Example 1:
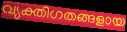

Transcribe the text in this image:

വ്യക്തിഗതങ്ങളായ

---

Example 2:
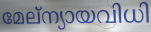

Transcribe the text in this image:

മേല്ന്യായവിധി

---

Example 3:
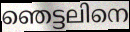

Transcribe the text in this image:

ഞെട്ടലിനെ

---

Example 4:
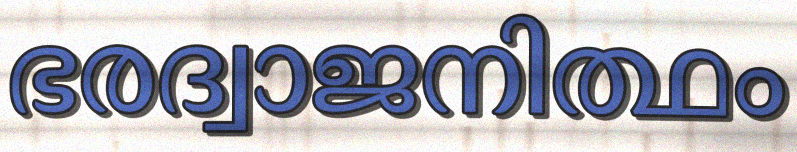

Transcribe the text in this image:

ഭരദ്വാജനിത്ഥം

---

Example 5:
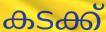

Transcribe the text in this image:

കടക്ക്